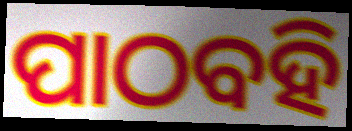
ପାଠବହି